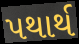
પથાર્થ